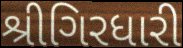
શ્રીગિરધારી